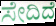
ಸೇದಿದೆ